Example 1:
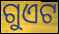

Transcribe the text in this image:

ଗୁଏଟ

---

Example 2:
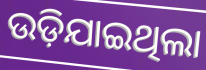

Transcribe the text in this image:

ଉଡ଼ିଯାଇଥିଲା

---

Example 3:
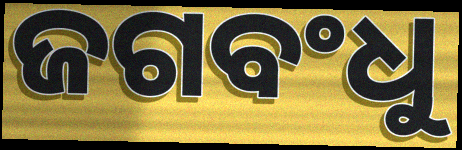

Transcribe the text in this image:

ଜଗବଂଧୁ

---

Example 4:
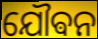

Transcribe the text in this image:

ଯୌଵନ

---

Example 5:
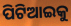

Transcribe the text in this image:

ପିଟିଆଇକୁ